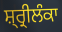
ਸ਼੍ਰ੍ਰੀਲੰਕਾ